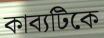
কাব্যটিকে